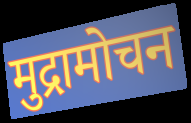
मुद्रामोचन